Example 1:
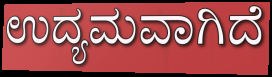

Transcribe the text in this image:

ಉದ್ಯಮವಾಗಿದೆ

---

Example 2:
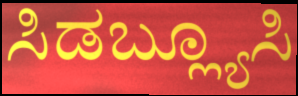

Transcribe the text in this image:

ಸಿಡಬ್ಲ್ಯೂಸಿ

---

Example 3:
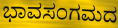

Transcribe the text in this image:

ಭಾವಸಂಗಮದ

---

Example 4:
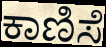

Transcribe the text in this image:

ಕಾಣಿಸೆ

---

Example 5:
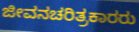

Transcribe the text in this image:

ಜೀವನಚರಿತ್ರಕಾರರು